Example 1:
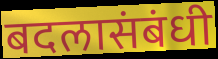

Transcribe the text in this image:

बदलासंबंधी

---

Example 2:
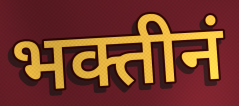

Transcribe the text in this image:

भक्तीनं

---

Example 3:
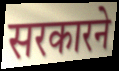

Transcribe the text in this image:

सरकारने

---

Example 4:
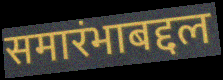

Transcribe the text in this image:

समारंभाबद्दल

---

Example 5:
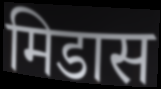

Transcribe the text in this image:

मिडास